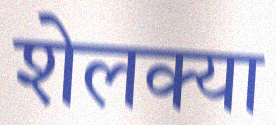
शेलक्या